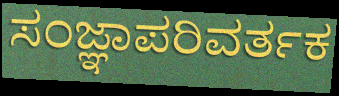
ಸಂಜ್ಞಾಪರಿವರ್ತಕ